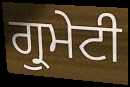
ਗ੍ਰੁਮੇਟੀ